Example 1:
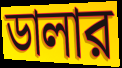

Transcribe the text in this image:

ডালার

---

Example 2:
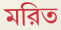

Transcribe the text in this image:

মরিত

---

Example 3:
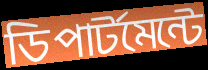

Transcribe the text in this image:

ডিপার্টমেন্টে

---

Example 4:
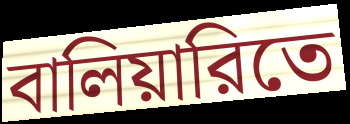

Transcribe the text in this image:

বালিয়ারিতে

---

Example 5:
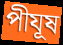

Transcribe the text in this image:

পীযূষ